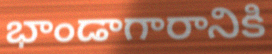
భాండాగారానికి